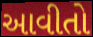
આવીતો